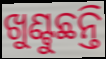
ଖୁଣ୍ଟୁଛନ୍ତି